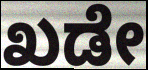
ಖಡೇ